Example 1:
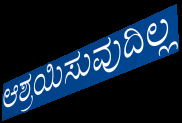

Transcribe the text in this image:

ಆಶ್ರಯಿಸುವುದಿಲ್ಲ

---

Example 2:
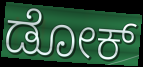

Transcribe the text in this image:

ಡೋಕ್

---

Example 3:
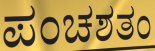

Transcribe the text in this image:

ಪಂಚಶತಂ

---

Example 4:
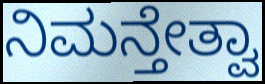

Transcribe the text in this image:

ನಿಮನ್ತೇತ್ವಾ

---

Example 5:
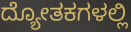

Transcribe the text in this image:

ದ್ಯೋತಕಗಳಲ್ಲಿ